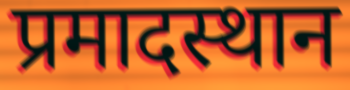
प्रमादस्थान